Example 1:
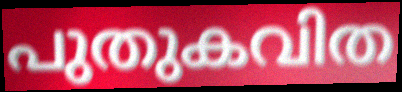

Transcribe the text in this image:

പുതുകവിത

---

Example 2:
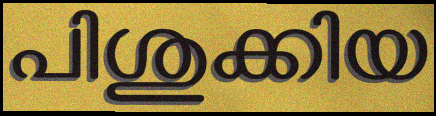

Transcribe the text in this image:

പിശുക്കിയ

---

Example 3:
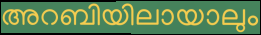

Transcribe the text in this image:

അറബിയിലായാലും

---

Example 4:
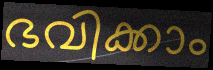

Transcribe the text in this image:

ഭവിക്കാം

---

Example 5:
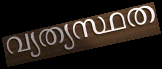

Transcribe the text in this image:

വ്യത്യസ്ഥത